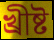
খ্ৰীষ্ট